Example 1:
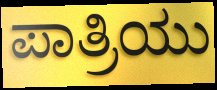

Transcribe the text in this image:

ಪಾತ್ರಿಯು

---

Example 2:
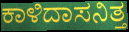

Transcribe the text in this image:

ಕಾಳಿದಾಸನಿತ್ತ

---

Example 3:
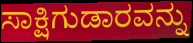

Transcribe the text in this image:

ಸಾಕ್ಷಿಗುಡಾರವನ್ನು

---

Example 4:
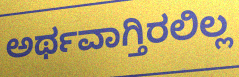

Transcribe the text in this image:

ಅರ್ಥವಾಗ್ತಿರಲಿಲ್ಲ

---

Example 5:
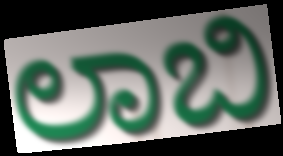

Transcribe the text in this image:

ಲಾಬಿ